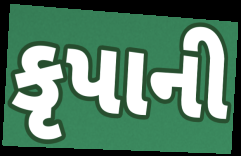
કૃપાની